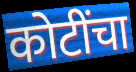
कोटींचा